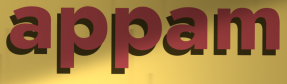
appam